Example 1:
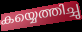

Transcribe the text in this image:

കയ്യെത്തിച്ചു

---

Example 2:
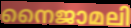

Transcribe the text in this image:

നൈജാമലി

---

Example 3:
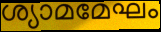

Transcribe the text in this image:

ശ്യാമമേഘം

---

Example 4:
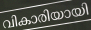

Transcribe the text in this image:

വികാരിയായി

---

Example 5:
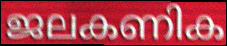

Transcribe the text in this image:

ജലകണിക